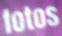
fotos